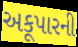
અકૂપારની